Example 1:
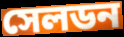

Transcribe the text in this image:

সেলডন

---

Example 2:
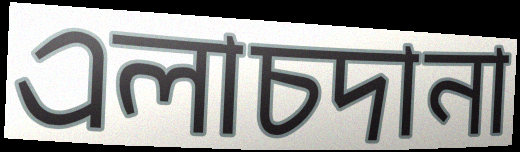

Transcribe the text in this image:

এলাচদানা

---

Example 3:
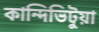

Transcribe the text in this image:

কান্দিভিটুয়া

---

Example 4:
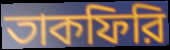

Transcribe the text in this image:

তাকফিরি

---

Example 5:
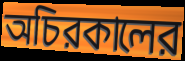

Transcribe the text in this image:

অচিরকালের